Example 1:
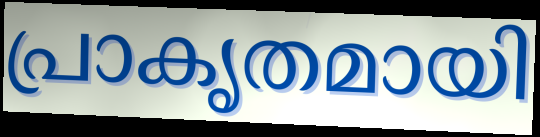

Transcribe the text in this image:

പ്രാകൃതമായി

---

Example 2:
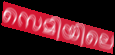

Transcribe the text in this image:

സെമിയിലെ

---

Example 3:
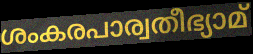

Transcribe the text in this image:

ശംകരപാര്വതീഭ്യാമ്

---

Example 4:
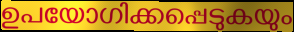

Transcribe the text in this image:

ഉപയോഗിക്കപ്പെടുകയും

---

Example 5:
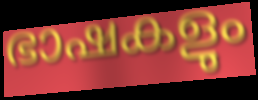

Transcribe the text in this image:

ഭാഷകളും